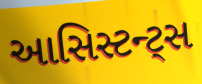
આસિસ્ટન્ટ્સ